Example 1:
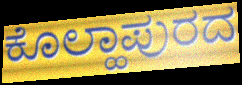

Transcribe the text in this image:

ಕೊಲ್ಹಾಪುರದ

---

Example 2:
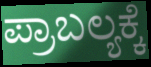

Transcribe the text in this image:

ಪ್ರಾಬಲ್ಯಕ್ಕೆ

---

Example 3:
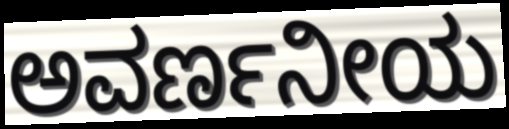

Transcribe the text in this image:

ಅವರ್ಣನೀಯ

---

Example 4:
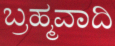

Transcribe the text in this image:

ಬ್ರಹ್ಮವಾದಿ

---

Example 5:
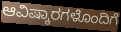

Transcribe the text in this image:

ಆವಿಷ್ಕಾರಗಳೊಂದಿಗೆ